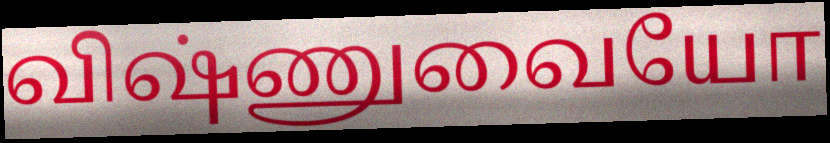
விஷ்ணுவையோ